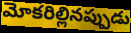
మోకరిల్లినప్పుడు